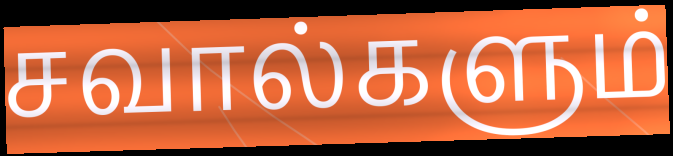
சவால்களும்